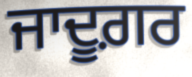
ਜਾਦੂਗ਼ਰ